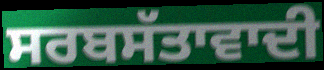
ਸਰਬਸੱਤਾਵਾਦੀ